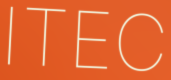
ITEC